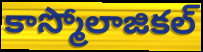
కాస్మోలాజికల్